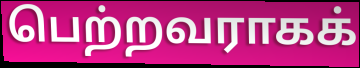
பெற்றவராகக்